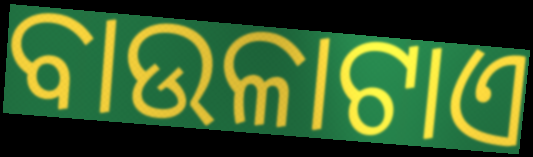
ବାଉଳାଟାଏ